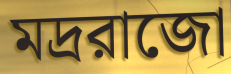
মদ্ররাজো